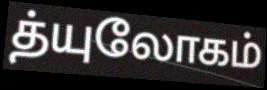
த்யுலோகம்